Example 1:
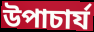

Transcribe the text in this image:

উপাচাৰ্য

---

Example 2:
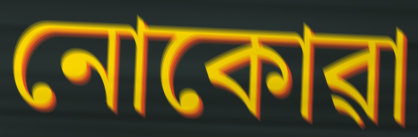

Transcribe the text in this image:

নোকোৱা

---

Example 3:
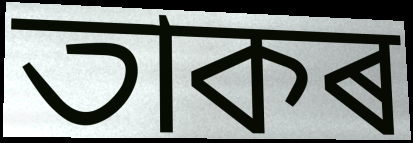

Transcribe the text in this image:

তাকৰ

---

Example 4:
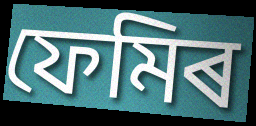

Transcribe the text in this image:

ফেমিৰ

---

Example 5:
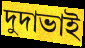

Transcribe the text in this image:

দুদাভাই